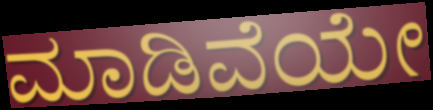
ಮಾಡಿವೆಯೇ